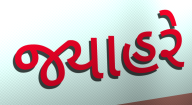
જ્યાહરે